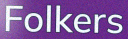
Folkers